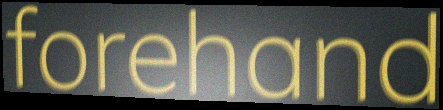
forehand